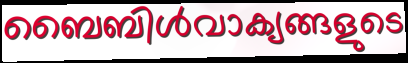
ബൈബിൾവാക്യങ്ങളുടെ